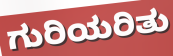
ಗುರಿಯರಿತು